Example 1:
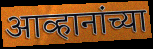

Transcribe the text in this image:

आव्हानांच्या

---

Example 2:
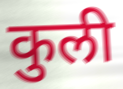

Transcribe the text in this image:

कुली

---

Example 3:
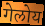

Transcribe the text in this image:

गेलोय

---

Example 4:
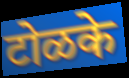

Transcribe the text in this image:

टोळके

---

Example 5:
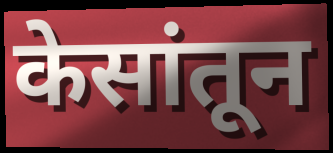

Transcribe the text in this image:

केसांतून